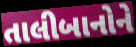
તાલીબાનોને